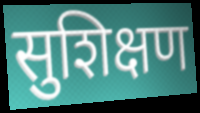
सुशिक्षण